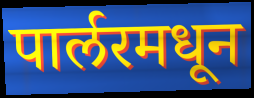
पार्लरमधून